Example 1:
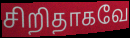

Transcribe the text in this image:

சிறிதாகவே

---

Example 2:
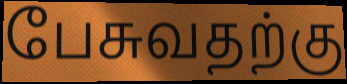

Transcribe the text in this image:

பேசுவதற்கு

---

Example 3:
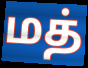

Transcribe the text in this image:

மத்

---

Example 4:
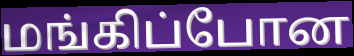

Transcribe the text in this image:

மங்கிப்போன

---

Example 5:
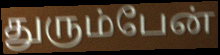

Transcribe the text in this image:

துரும்பேன்